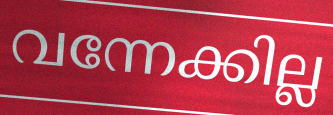
വന്നേക്കില്ല